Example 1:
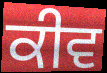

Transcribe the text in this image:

ਕੀਵ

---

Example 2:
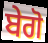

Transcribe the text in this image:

ਬੇਗੋ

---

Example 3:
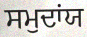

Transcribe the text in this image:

ਸਮੁਦਾਂਯ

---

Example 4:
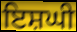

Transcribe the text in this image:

ਇਸ਼ਘੀ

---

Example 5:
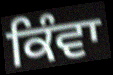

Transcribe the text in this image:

ਕਿੰਵਾ